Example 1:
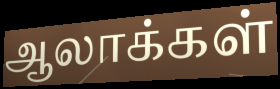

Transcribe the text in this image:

ஆலாக்கள்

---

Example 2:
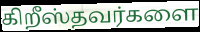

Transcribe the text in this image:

கிறீஸ்தவர்களை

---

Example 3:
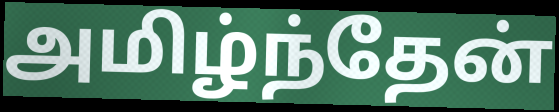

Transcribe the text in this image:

அமிழ்ந்தேன்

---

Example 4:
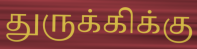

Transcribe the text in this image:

துருக்கிக்கு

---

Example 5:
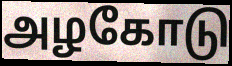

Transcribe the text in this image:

அழகோடு